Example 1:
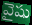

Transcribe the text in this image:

వైషు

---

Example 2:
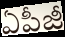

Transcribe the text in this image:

ఏపీజీ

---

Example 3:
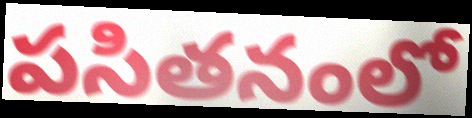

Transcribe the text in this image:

పసితనంలో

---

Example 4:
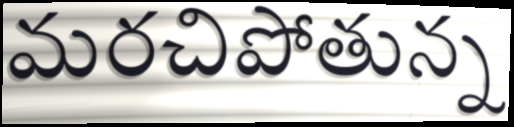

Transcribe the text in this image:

మరచిపోతున్న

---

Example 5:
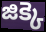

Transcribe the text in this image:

జిక్కె